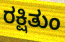
ರಕ್ಷಿತುಂ